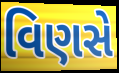
વિણસે